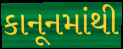
કાનૂનમાંથી